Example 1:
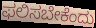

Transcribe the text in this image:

ಫಲಿಸಬೇಕೆಂದು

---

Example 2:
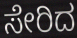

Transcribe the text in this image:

ಸೇರಿದ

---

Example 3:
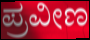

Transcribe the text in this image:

ಪ್ರವೀಣ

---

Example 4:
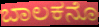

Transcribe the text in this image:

ಬಾಲಕನೊ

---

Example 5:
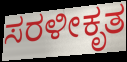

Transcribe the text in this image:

ಸರಳೀಕೃತ